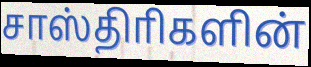
சாஸ்திரிகளின்